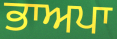
ਭਾਅਪਾ